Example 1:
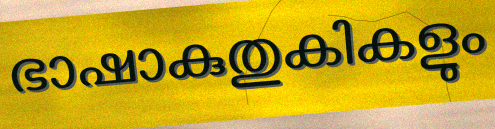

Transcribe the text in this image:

ഭാഷാകുതുകികളും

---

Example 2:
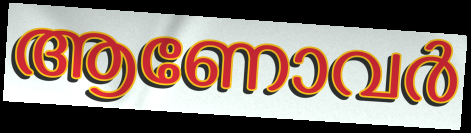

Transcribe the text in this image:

ആണോവർ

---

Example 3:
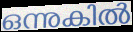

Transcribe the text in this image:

ഒന്നുകിൽ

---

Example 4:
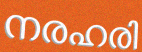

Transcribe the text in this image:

നരഹരി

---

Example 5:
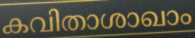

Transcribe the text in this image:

കവിതാശാഖാം